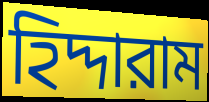
হিদ্দারাম